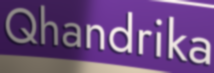
Qhandrika